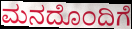
ಮನದೊಂದಿಗೆ